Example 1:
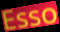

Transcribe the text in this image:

Esso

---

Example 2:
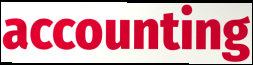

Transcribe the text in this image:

accounting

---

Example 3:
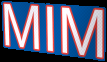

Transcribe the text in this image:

MIM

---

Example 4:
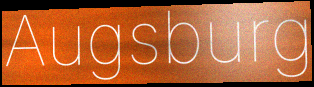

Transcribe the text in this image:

Augsburg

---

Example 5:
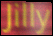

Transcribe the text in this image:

Jilly